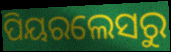
ପିୟରଲେସରୁ